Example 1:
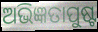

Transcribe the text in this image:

ଅଭିଜ୍ଞତାପୁଷ୍ଟ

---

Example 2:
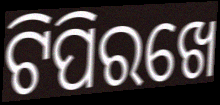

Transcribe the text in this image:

ଟିପିରଖେ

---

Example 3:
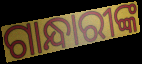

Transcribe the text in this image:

ଗାନ୍ଧାରୀଙ୍କ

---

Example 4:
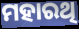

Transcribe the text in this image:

ମହାରଥି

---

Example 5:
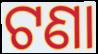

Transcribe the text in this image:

ଟଣା